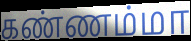
கண்ணம்மா